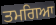
ਤਮਗਿਆ